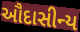
ઔદાસીન્ય